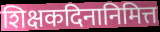
शिक्षकदिनानिमित्त